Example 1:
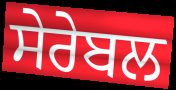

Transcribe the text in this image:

ਸੇਰੇਬਲ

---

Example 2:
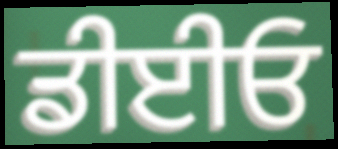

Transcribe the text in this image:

ਡੀਈਓ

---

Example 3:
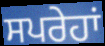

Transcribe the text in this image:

ਸਪਰੇਹਾਂ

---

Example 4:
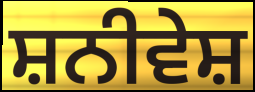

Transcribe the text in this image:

ਸ਼ਨੀਵੇਸ਼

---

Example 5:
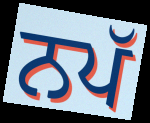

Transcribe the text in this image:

ਨਪੱ